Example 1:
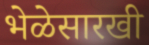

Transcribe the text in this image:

भेळेसारखी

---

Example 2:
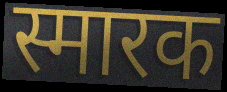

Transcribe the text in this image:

स्मारक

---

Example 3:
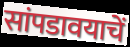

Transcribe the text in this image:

सांपडावयाचें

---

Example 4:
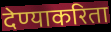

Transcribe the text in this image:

देण्याकरिता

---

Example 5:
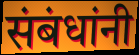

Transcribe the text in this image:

संबंधांनी